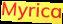
Myrica